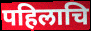
पहिलाचि